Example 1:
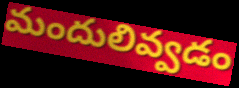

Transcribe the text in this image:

మందులివ్వడం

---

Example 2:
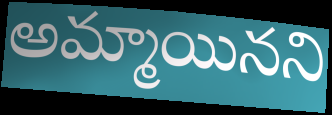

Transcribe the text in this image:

అమ్మాయినని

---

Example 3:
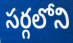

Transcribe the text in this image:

సర్గలోని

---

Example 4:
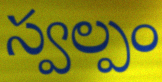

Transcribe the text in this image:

స్వల్పం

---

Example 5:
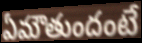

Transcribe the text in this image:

ఏమౌతుందంటే